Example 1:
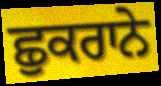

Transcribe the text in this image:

ਛੁਕਰਾਨੇ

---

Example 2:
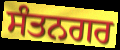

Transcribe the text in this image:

ਸੰਤਨਗਰ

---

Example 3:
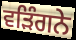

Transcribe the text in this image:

ਵੜਿੰਗਨੇ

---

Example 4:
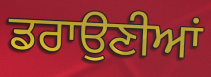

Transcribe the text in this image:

ਡਰਾਉਣੀਆਂ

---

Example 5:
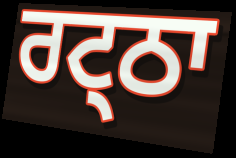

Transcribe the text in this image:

ਰਟ੍ਠਾ